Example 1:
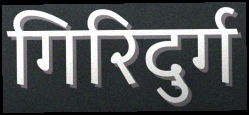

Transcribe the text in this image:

गिरिदुर्ग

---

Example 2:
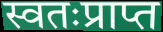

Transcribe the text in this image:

स्वतःप्राप्त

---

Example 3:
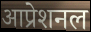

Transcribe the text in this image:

आप्रेशनल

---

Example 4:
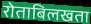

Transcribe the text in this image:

रोताबिलखता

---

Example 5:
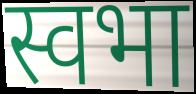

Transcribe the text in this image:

स्वभा